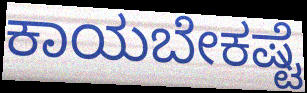
ಕಾಯಬೇಕಷ್ಟೆ